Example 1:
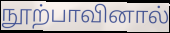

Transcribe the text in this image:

நூற்பாவினால்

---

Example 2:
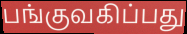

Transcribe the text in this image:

பங்குவகிப்பது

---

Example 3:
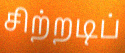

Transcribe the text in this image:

சிற்றடிப்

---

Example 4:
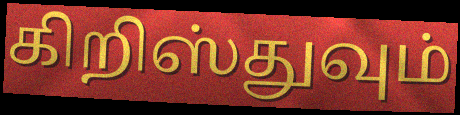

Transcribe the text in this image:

கிறிஸ்துவும்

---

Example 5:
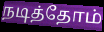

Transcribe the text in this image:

நடித்தோம்